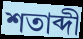
শতাব্দী